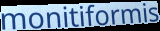
monitiformis